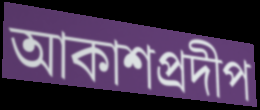
আকাশপ্রদীপ